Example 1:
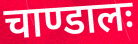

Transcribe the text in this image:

चाण्डालः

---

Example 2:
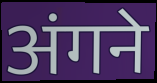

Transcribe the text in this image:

अंगने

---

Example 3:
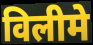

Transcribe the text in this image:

विलीमे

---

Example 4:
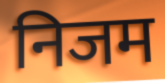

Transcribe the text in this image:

निजम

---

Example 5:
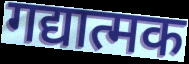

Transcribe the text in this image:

गद्यात्मक